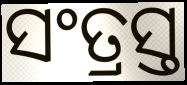
ସଂତ୍ରସ୍ତ